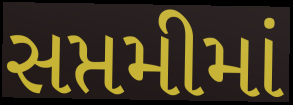
સપ્તમીમાં